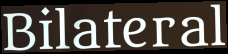
Bilateral